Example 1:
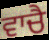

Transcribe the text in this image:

ਵਾਚੈ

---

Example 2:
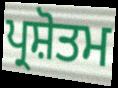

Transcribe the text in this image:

ਪ੍ਰਸ਼ੋਤਮ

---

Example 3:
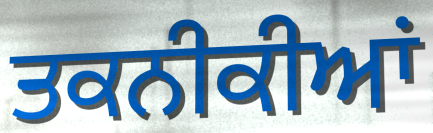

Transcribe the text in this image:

ਤਕਨੀਕੀਆਂ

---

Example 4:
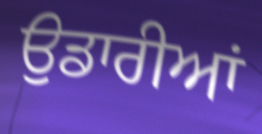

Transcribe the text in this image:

ਉੁਡਾਰੀਆਂ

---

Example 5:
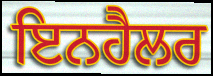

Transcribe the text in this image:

ਇਨਹੈਲਰ